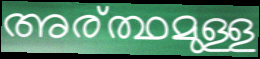
അര്ത്ഥമുള്ള